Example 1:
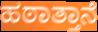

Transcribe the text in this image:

ಹಠಾತ್ತಾನೆ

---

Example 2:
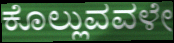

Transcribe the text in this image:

ಕೊಲ್ಲುವವಳೇ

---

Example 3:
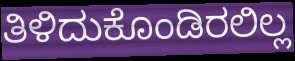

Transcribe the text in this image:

ತಿಳಿದುಕೊಂಡಿರಲಿಲ್ಲ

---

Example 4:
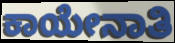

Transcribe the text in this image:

ಕಾಯೇನಾತಿ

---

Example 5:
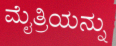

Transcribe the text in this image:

ಮೈತ್ರಿಯನ್ನು